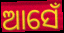
ଆସେଁ